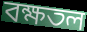
বক্ষতল